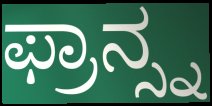
ಫ್ರಾನ್ಸ್ನ